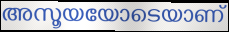
അസൂയയോടെയാണ്